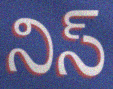
నిస్